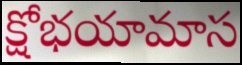
క్షోభయామాస